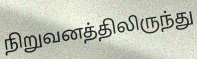
நிறுவனத்திலிருந்து